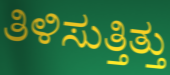
ತಿಳಿಸುತ್ತಿತ್ತು